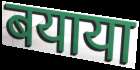
बयाया